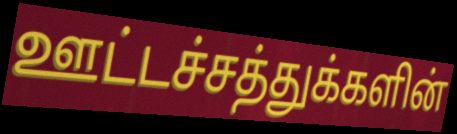
ஊட்டச்சத்துக்களின்